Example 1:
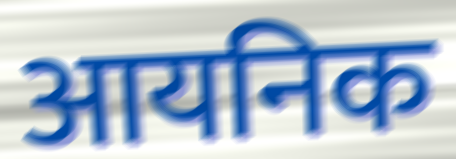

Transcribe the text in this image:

आयनिक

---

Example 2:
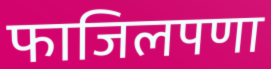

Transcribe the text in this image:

फाजिलपणा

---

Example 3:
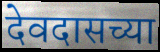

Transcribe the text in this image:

देवदासच्या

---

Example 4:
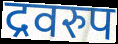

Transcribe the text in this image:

द्रवरुप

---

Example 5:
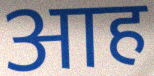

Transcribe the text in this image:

आह